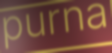
purna